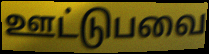
ஊட்டுபவை